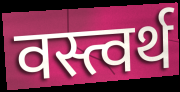
वस्त्वर्थ